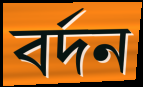
বর্দন